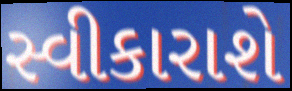
સ્વીકારાશે